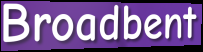
Broadbent